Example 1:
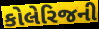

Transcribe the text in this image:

કોલેરિજની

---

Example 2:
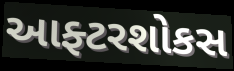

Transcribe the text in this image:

આફ્ટરશોકસ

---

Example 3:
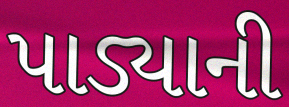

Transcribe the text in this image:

પાડ્યાની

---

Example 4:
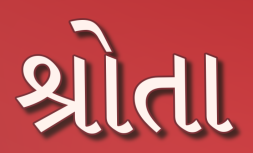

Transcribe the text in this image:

શ્રોતા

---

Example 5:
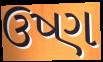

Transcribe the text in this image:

ઉષ્ણ